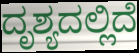
ದೃಶ್ಯದಲ್ಲಿದೆ